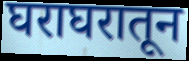
घराघरातून